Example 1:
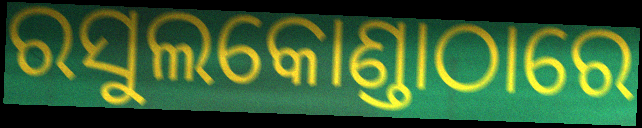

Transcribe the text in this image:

ରସୁଲକୋଣ୍ଡାଠାରେ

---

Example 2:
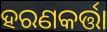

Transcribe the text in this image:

ହରଣକର୍ତ୍ତା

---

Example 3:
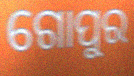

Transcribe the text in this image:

ଗୋପୁର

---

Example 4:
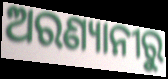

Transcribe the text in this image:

ଅରଣ୍ୟାନୀରୁ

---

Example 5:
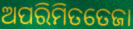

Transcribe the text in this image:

ଅପରିମିତତେଜା